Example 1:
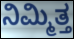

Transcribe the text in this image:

ನಿಮ್ಮಿತ್ತ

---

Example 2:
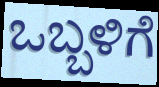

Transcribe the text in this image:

ಒಬ್ಬಳಿಗೆ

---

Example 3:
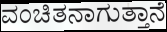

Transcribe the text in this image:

ವಂಚಿತನಾಗುತ್ತಾನೆ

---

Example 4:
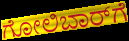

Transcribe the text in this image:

ಗೋಲಿಬಾರ್‌ಗೆ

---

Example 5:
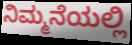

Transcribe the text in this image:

ನಿಮ್ಮನೆಯಲ್ಲಿ